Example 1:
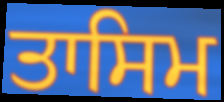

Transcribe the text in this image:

ਤਾਸਿਮ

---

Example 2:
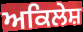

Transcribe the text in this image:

ਅਕਿਲੇਸ਼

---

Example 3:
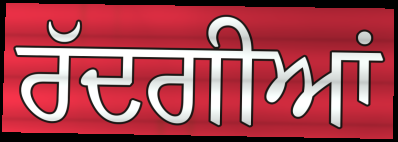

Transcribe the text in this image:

ਰੱਦਗੀਆਂ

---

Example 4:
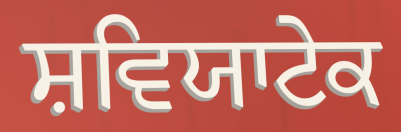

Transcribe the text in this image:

ਸ਼ਵਿਯਾਟੇਕ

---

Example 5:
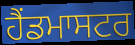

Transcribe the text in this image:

ਹੈਂਡਮਾਸਟਰ